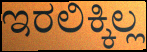
ಇರಲಿಕ್ಕಿಲ್ಲ